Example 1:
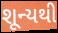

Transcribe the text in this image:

શૂન્યથી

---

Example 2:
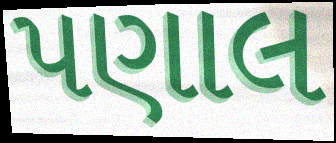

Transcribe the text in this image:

પણાલ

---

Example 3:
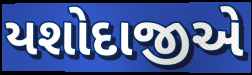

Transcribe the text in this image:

યશોદાજીએ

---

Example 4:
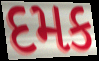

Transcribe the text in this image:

દમક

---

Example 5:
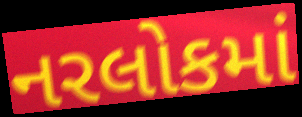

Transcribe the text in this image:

નરલોકમાં